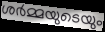
ശർമ്മയുടെയും